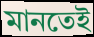
মানতেই